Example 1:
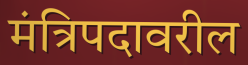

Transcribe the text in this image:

मंत्रिपदावरील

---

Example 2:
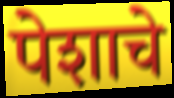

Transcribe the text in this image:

पेशाचे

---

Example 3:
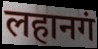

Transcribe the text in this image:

लहानगं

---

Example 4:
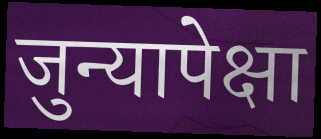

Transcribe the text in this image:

जुन्यापेक्षा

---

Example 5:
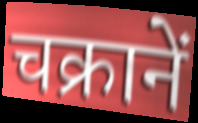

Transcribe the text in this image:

चक्रानें